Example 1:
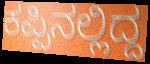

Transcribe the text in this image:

ಕಪ್ಪಿನಲ್ಲಿದ್ದ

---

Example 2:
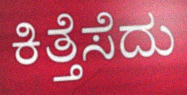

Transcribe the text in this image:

ಕಿತ್ತೆಸೆದು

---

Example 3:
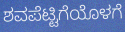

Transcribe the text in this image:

ಶವಪೆಟ್ಟಿಗೆಯೊಳಗೆ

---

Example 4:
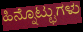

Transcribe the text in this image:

ಹಿನ್ನೊಟ್ಟುಗಳು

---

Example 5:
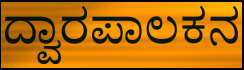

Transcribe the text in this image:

ದ್ವಾರಪಾಲಕನ